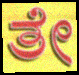
ತೇ